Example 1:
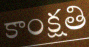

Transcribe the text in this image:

కాంక్షతి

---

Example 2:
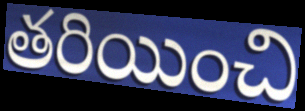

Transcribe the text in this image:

తరియించి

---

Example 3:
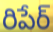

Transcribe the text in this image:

రిపేర్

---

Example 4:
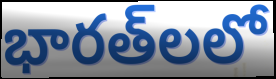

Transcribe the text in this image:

భారత్‌లలో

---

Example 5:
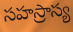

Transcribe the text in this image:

సహస్రాస్య